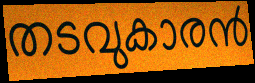
തടവുകാരൻ